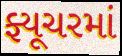
ફ્યૂચરમાં